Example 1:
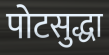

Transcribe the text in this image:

पोटसुद्धा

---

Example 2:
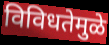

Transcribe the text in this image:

विविधतेमुळे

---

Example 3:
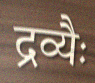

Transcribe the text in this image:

द्रव्यैः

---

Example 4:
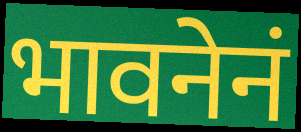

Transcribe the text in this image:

भावनेनं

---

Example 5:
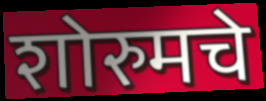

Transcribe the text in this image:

शोरुमचे